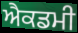
ਐਕਡਮੀ